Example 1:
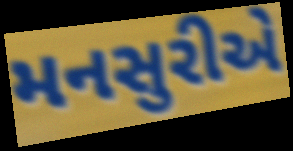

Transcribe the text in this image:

મનસુરીએ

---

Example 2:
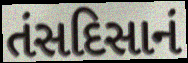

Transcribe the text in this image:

તંસદિસાનં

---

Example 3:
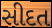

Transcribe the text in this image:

સીદત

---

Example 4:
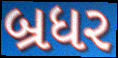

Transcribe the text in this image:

બ્રધર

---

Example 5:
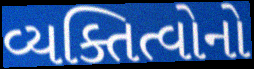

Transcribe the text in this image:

વ્યક્તિત્વોનો